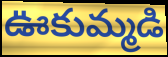
ఊకుమ్మడి